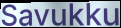
Savukku